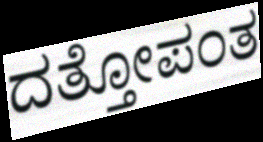
ದತ್ತೋಪಂತ